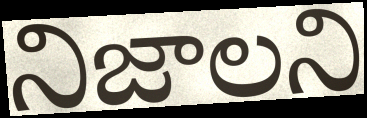
నిజాలని